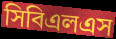
সিবিএলএস